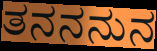
ತನನನುನ